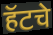
हॅटचे